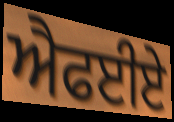
ਐਫਈਏ